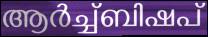
ആർച്ച്ബിഷപ്